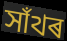
সাঁথৰ